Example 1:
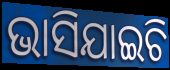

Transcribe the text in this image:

ଭାସିଯାଇଚି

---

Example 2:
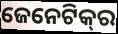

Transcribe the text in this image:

ଜେନେଟିକ୍‌ର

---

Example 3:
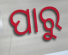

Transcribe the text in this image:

ପାରୁ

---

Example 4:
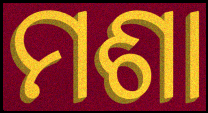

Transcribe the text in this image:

ମଶା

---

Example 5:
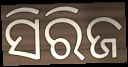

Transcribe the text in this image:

ସିରିଜ